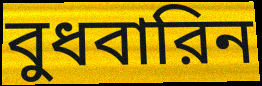
বুধবারিন